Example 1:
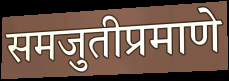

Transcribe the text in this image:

समजुतीप्रमाणे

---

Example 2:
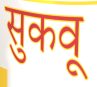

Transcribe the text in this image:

सुकवू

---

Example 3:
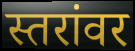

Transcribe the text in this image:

स्तरांवर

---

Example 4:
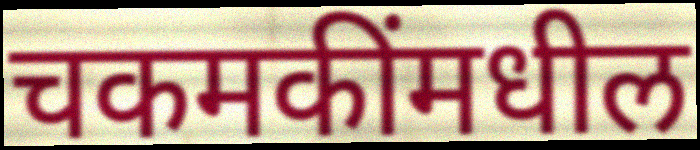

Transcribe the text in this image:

चकमकींमधील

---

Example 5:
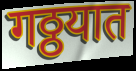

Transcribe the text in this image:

गठ्ठयात